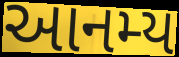
આનમ્ય